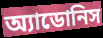
অ্যাডোনিস